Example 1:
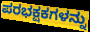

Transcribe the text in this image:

ಪರಭಕ್ಷಕಗಳನ್ನು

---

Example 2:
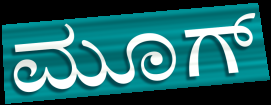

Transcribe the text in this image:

ಮೂಗ್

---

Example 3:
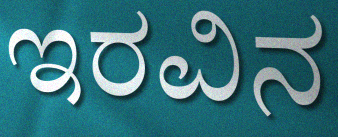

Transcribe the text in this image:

ಇರವಿನ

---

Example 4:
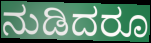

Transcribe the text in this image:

ನುಡಿದರೂ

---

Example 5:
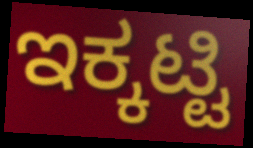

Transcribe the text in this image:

ಇಕ್ಕಟ್ಟಿ